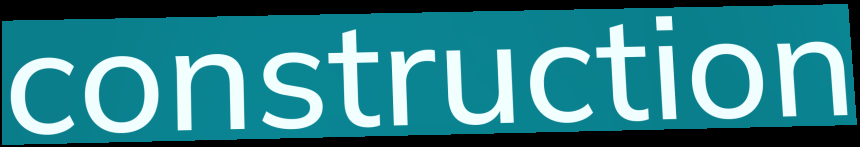
construction